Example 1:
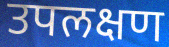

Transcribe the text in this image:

उपलक्षण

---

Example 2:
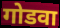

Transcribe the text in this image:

गोडवा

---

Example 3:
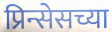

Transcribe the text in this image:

प्रिन्सेसच्या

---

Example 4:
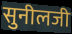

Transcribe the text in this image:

सुनीलजी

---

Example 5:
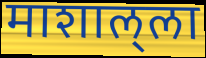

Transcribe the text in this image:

माशाल्ला